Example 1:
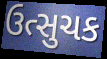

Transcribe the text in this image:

ઉત્સુચક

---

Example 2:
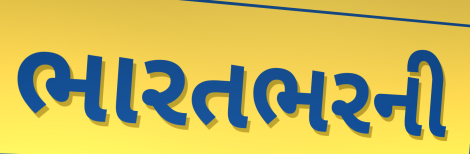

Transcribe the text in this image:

ભારતભરની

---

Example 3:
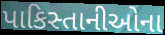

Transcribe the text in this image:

પાકિસ્તાનીઓના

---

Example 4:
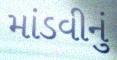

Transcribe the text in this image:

માંડવીનું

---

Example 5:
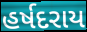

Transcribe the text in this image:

હર્ષદરાય